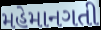
મહેમાનગતી